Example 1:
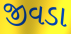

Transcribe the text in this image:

જીવડા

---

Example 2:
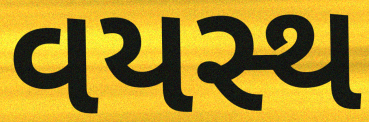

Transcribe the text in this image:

વયસ્થ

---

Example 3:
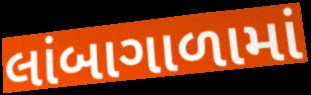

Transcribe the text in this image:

લાંબાગાળામાં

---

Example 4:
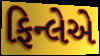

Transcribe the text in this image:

ફિન્લેએ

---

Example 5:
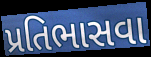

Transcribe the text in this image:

પ્રતિભાસવા